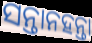
ସନ୍ତାନହନ୍ତା